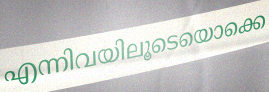
എന്നിവയിലൂടെയൊക്കെ